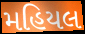
મહિયલ